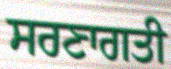
ਸਰਣਾਗਤੀ